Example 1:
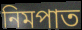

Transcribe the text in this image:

নিমপাত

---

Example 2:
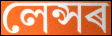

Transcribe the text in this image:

লেন্সৰ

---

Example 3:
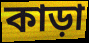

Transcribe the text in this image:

কাড়া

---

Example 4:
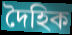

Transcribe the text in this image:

দৈহিক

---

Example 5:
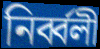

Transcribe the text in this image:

নিৰ্ব্বলী